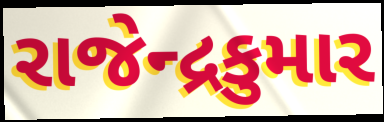
રાજેન્દ્રકુમાર